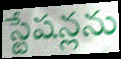
స్టేషన్లను